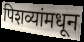
पिशव्यांमधून